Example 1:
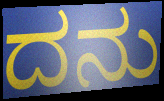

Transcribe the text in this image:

ದನು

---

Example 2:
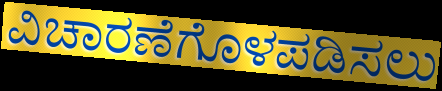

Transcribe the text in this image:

ವಿಚಾರಣೆಗೊಳಪಡಿಸಲು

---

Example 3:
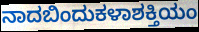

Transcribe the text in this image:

ನಾದಬಿಂದುಕಳಾಶಕ್ತಿಯಂ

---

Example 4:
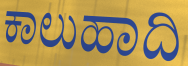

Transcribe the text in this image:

ಕಾಲುಹಾದಿ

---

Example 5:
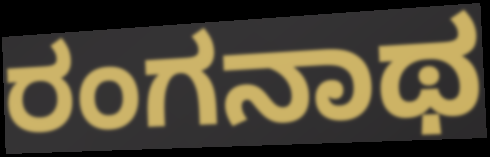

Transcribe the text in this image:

ರಂಗನಾಥ